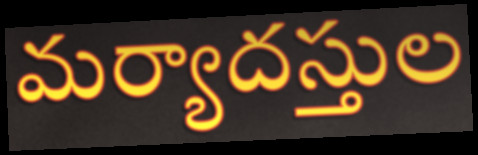
మర్యాదస్తుల